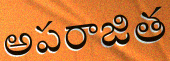
అపరాజిత